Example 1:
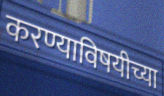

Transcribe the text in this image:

करण्याविषयीच्या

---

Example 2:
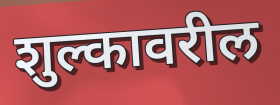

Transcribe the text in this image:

शुल्कावरील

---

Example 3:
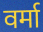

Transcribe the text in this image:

वर्मा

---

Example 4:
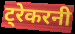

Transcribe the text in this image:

ट्रेकरनी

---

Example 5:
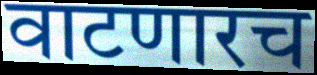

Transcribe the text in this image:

वाटणारच